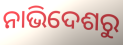
ନାଭିଦେଶରୁ